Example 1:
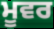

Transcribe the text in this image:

ਮੂਵਰ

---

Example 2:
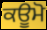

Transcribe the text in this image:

ਕਊਮੋ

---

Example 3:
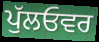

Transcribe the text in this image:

ਪੁੱਲਓਵਰ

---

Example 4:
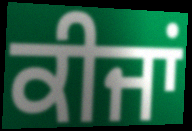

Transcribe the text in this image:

ਕੀਜਾਂ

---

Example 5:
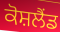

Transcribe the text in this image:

ਕੋਸ਼ਲੈਂਡ